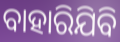
ବାହାରିଯିବି